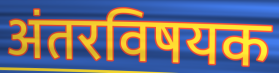
अंतरविषयक